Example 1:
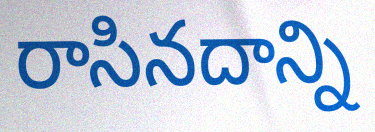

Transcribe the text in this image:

రాసినదాన్ని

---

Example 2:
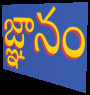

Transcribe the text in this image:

జ్ఞానం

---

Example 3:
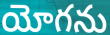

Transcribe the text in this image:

యోగను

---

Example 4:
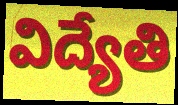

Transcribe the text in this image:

విద్యేతి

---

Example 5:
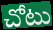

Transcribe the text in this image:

చోటు